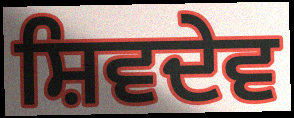
ਸ਼ਿਵਦੇਵ